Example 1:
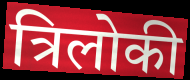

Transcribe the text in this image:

त्रिलोकी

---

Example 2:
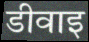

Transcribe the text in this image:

डीवाइ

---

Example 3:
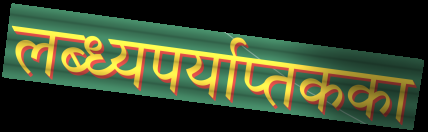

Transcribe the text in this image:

लब्ध्यपर्याप्तकका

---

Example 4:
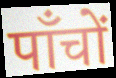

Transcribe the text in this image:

पाँचों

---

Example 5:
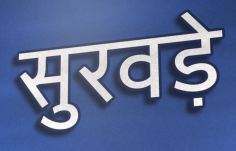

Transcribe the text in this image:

सुरवड़े